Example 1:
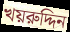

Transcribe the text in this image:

খয়রুদ্দিন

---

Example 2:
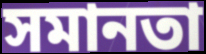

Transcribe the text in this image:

সমানতা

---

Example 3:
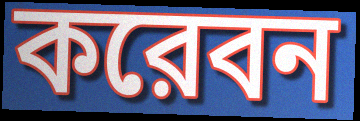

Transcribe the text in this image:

করেবন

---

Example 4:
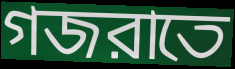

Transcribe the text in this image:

গজরাতে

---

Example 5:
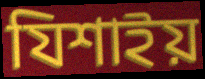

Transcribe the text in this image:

যিশাইয়